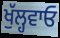
ਖੁੱਲ੍ਹਵਾਓ